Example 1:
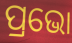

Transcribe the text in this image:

ପ୍ରଭୋ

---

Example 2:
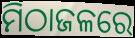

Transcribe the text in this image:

ମିଠାଜଳରେ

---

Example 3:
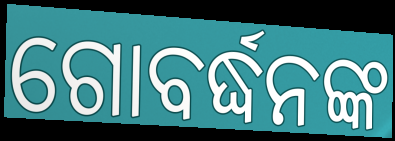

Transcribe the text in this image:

ଗୋବର୍ଦ୍ଧନଙ୍କ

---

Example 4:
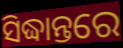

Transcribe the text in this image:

ସିଦ୍ଧାନ୍ତରେ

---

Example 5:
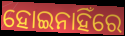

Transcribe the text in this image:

ହୋଇନାହିଁରେ